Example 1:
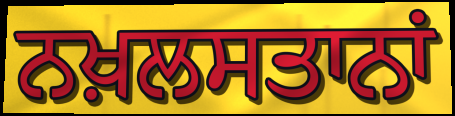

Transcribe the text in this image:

ਨਖ਼ਲਸਤਾਨਾਂ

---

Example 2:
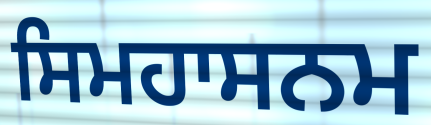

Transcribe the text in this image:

ਸਿਮਹਾਸਨਮ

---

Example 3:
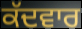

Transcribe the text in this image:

ਕੱਦਵਾਰ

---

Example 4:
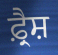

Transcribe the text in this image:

ਫ਼੍ਰੈਸ਼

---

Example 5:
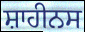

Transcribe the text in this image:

ਸ਼ਾਹੀਨਸ